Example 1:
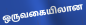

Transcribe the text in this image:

ஒருவகையிலான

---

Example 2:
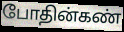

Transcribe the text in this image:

போதின்கண்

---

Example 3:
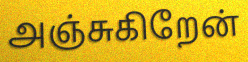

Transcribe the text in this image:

அஞ்சுகிறேன்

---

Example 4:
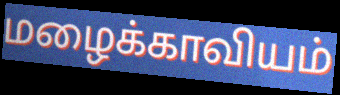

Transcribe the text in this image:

மழைக்காவியம்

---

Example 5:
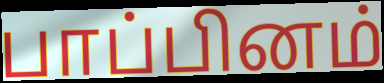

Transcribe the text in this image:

பாப்பினம்